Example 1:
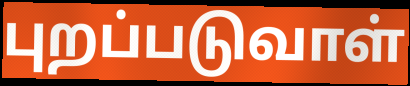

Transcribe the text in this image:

புறப்படுவாள்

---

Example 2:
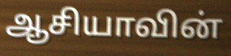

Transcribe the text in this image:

ஆசியாவின்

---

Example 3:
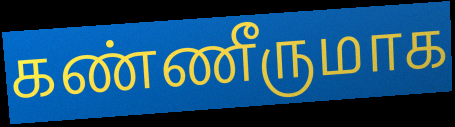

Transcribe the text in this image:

கண்ணீருமாக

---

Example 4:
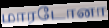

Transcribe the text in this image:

மாரடோனா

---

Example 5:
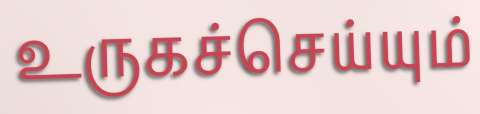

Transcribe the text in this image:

உருகச்செய்யும்